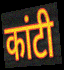
कांटी